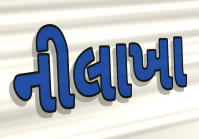
નીલાખા